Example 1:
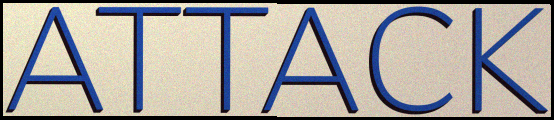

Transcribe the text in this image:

ATTACK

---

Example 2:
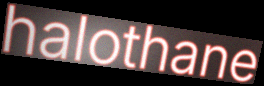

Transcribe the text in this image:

halothane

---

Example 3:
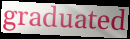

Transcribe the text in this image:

graduated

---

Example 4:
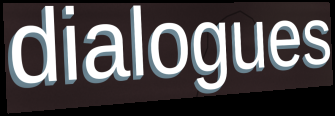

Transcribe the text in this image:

dialogues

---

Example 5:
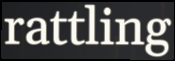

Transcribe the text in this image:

rattling